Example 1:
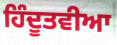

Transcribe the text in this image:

ਹਿੰਦੂਤਵੀਆ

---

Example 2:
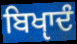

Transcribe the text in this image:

ਬਿਖੵਾਦੰ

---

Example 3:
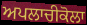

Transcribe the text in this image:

ਅਪਲਾਚੀਕੋਲਾ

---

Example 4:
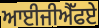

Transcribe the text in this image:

ਆਈਜੀਐੱਫਏ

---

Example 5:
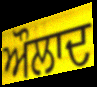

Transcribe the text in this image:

ਔਲਾਦ